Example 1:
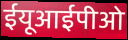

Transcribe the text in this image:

ईयूआईपीओ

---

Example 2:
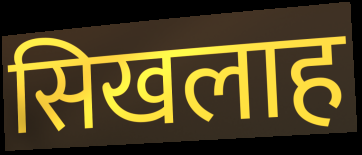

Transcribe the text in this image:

सिखलाह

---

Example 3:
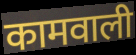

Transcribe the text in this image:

कामवाली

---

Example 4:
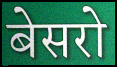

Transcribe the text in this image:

बेसरो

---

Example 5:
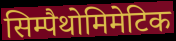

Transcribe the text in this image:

सिम्पैथोमिमेटिक